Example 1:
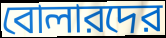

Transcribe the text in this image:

বোলারদের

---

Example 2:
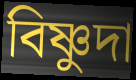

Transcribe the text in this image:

বিষ্ণুদা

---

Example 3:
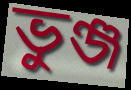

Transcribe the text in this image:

ভুঞ্জ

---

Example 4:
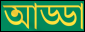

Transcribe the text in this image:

আড্ডা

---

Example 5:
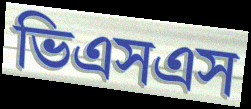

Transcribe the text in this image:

ভিএসএস